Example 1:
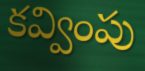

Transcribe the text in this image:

కవ్వింపు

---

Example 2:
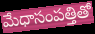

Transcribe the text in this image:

మేధాసంపత్తితో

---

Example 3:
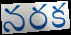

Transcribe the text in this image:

నరక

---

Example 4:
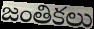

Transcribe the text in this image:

జంతికలు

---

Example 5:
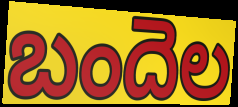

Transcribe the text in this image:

బందెల